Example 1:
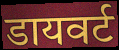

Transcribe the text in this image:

डायवर्ट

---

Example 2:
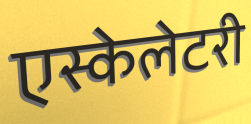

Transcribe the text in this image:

एस्केलेटरी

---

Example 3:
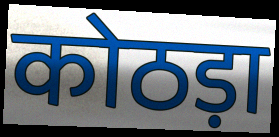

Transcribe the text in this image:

कोठड़ा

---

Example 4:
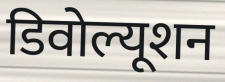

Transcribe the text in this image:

डिवोल्यूशन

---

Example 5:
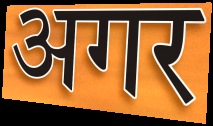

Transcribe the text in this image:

अगर